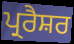
ਪ੍ਰਰੈਸ਼ਰ